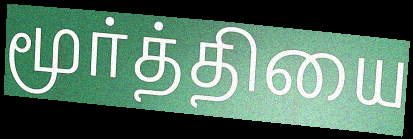
மூர்த்தியை